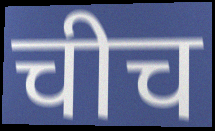
चीच